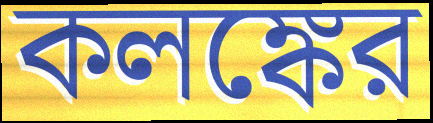
কলঙ্কের